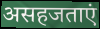
असहजताएं